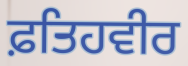
ਫ਼ਤਿਹਵੀਰ